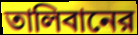
তালিবানের